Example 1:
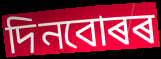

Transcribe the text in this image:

দিনবোৰৰ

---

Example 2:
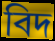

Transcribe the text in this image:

বিদ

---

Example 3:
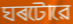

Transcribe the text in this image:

ঘৰটোৱে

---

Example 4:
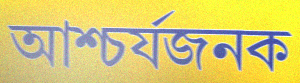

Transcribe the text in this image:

আশ্চৰ্যজনক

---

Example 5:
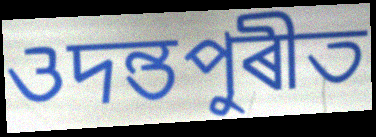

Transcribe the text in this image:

ওদন্তপুৰীত